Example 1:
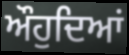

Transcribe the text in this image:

ਔਹੁਦਿਆਂ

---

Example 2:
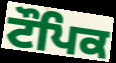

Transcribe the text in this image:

ਟੌਪਿਕ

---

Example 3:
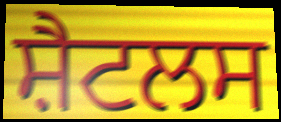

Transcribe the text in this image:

ਸ਼ੈਟਲਸ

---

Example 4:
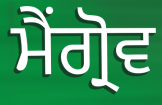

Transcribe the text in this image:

ਮੈਂਗ੍ਰੋਵ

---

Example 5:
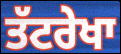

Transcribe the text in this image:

ਤੱਟਰੇਖਾ